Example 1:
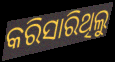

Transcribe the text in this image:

କରିସାରିଥିଲୁ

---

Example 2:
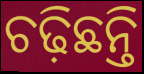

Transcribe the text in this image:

ଚଢ଼ିଛନ୍ତି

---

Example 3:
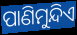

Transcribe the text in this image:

ପାଣିମୁନ୍ଦିଏ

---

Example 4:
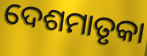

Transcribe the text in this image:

ଦେଶମାତୃକା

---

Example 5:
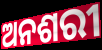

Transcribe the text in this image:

ଅନଶରୀ